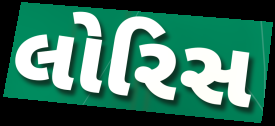
લોરિસ